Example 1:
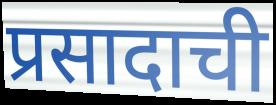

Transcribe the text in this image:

प्रसादाची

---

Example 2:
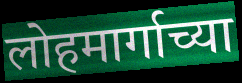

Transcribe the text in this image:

लोहमार्गाच्या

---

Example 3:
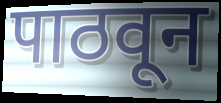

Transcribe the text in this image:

पाठवून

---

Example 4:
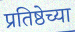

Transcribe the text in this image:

प्रतिष्ठेच्या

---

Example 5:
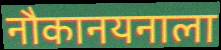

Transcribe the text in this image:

नौकानयनाला